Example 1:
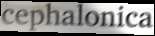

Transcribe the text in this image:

cephalonica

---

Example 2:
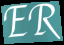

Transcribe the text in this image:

ER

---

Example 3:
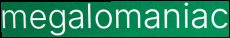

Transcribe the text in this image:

megalomaniac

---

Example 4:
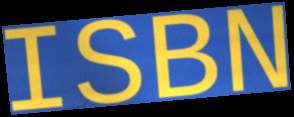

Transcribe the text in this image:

ISBN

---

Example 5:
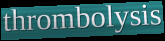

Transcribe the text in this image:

thrombolysis